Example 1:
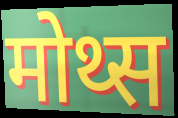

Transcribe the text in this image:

मोथ्स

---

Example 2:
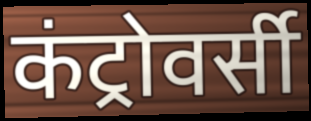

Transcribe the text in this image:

कंट्रोवर्सी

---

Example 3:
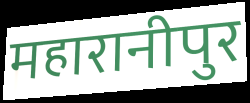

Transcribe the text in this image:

महारानीपुर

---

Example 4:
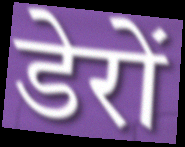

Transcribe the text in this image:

डेरों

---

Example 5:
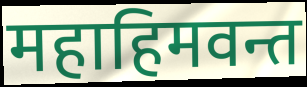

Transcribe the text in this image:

महाहिमवन्त